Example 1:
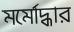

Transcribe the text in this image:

মর্মোদ্ধার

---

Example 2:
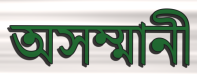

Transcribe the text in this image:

অসম্মানী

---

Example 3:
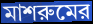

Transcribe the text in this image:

মাশরুমের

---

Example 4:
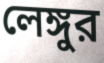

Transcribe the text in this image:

লেঙ্গুর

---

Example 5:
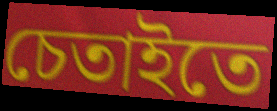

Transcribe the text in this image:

চেতাইতে